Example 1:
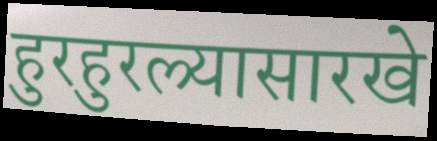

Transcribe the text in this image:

हुरहुरल्यासारखे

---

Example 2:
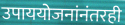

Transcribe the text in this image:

उपाययोजनांनंतरही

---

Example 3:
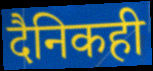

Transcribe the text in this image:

दैनिकही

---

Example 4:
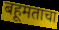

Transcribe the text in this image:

बहूमताचा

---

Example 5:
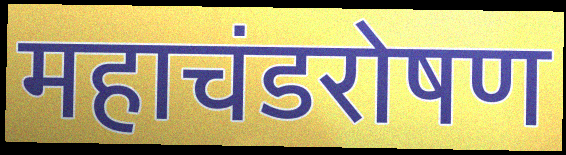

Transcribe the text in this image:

महाचंडरोषण